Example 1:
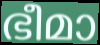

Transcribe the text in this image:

ഭീമാ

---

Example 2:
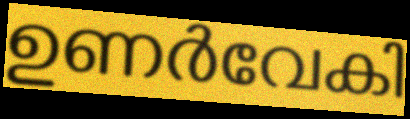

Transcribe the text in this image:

ഉണർവേകി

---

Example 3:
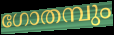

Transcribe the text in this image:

ഗോതമ്പും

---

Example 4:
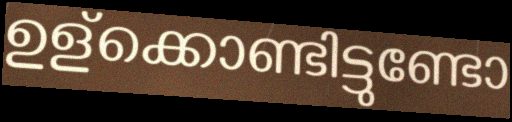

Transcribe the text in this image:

ഉള്ക്കൊണ്ടിട്ടുണ്ടോ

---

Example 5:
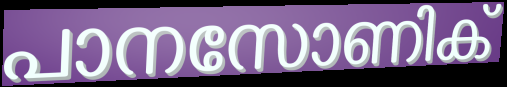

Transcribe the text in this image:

പാനസോണിക്